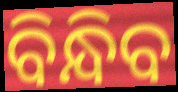
ବିନ୍ଧିବ